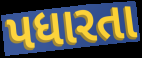
પધારતા